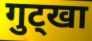
गुट्खा